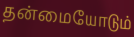
தன்மையோடும்